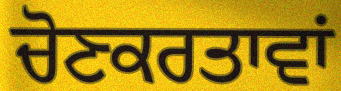
ਚੋਣਕਰਤਾਵਾਂ